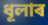
ধূলাৰ